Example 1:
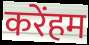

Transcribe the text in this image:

करेंहम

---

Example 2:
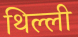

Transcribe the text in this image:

थिल्ली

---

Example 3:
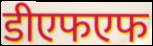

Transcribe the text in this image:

डीएफएफ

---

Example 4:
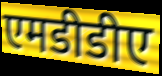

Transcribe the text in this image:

एमडीडीए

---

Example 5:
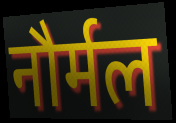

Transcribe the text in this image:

नौर्मल